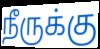
நீருக்கு